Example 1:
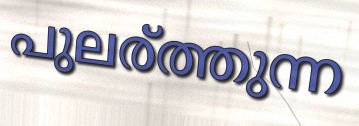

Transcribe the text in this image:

പുലര്ത്തുന്ന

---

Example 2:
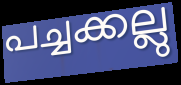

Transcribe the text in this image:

പച്ചക്കല്ലു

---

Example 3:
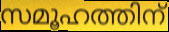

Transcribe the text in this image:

സമൂഹത്തിന്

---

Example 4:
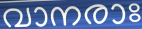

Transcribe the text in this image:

വാനരാഃ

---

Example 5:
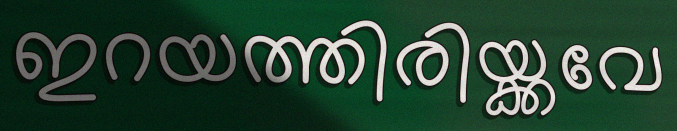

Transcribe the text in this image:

ഇറയത്തിരിയ്ക്കവേ